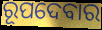
ରୂପଦେବାର